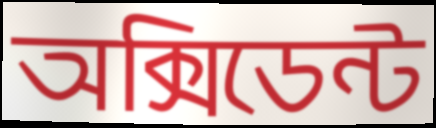
অক্সিডেন্ট